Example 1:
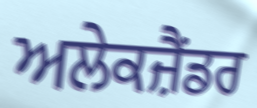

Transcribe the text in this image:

ਅਲੇਕਜ਼ੈਂਡਰ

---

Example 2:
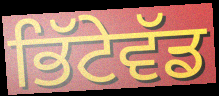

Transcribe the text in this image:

ਭਿੱਟੇਵੱਡ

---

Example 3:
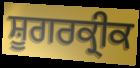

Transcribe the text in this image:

ਸ਼ੂਗਰਕ੍ਰੀਕ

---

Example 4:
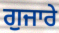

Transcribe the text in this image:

ਗੁਜਾਰੇ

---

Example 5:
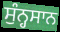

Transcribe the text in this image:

ਸੁੰਨ੍ਹਸਾਨ